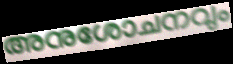
അനുശോചനവും